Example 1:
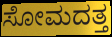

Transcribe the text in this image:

ಸೋಮದತ್ತ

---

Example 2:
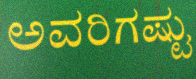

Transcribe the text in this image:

ಅವರಿಗಷ್ಟು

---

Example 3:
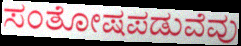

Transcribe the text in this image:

ಸಂತೋಷಪಡುವೆವು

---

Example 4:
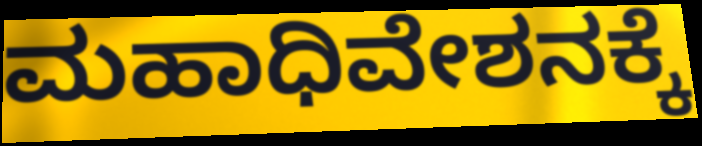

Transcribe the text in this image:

ಮಹಾಧಿವೇಶನಕ್ಕೆ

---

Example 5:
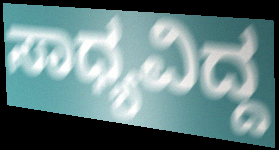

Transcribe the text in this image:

ಸಾಧ್ಯವಿದ್ದ